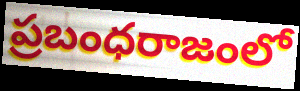
ప్రబంధరాజంలో